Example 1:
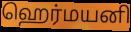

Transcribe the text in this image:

ஹெர்மயனி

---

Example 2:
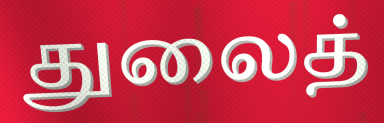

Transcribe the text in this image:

துலைத்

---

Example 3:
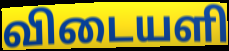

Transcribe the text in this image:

விடையளி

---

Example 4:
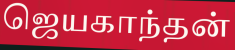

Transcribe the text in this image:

ஜெயகாந்தன்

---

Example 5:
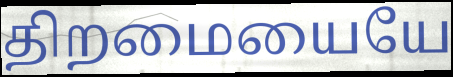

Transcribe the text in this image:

திறமையையே